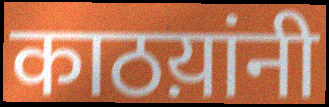
काठय़ांनी